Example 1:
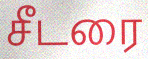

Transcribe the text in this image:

சீடரை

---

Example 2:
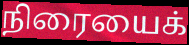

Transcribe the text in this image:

நிரையைக்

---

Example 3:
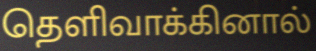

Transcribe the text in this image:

தெளிவாக்கினால்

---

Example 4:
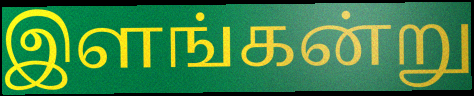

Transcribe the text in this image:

இளங்கன்று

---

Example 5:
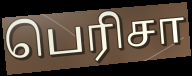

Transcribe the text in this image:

பெரிசா